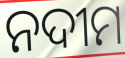
ନଦୀମ